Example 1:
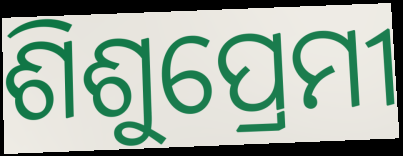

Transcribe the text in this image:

ଶିଶୁପ୍ରେମୀ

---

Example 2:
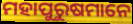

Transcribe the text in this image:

ମହାପୁରୁଷମାନେ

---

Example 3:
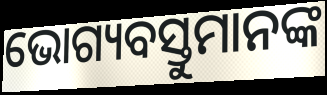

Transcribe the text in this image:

ଭୋଗ୍ୟବସ୍ତୁମାନଙ୍କ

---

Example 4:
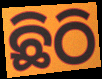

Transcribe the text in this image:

ଛିଠି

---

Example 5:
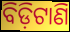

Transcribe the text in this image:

ବିଡ଼ିଟାଣି